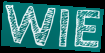
WIE